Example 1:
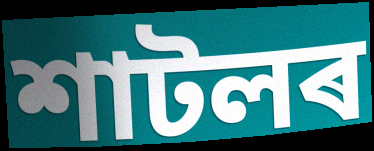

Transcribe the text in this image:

শাটলৰ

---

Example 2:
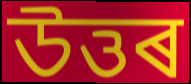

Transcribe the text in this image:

উত্তৰ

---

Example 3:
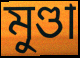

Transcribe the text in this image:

মুণ্ডা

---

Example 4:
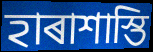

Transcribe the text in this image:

হাৰাশাস্তি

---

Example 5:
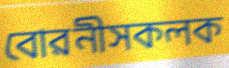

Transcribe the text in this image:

বোৱনীসকলক